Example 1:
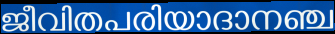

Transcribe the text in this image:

ജീവിതപരിയാദാനഞ്ച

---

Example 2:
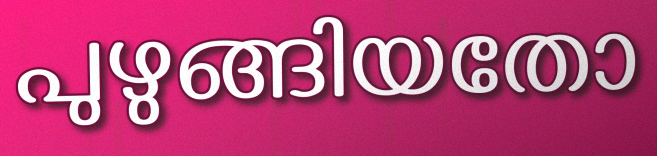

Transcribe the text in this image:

പുഴുങ്ങിയതോ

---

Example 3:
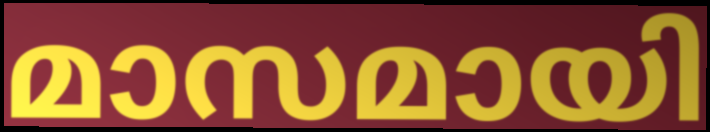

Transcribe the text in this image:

മാസമായി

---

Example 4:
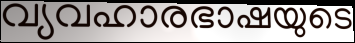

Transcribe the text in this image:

വ്യവഹാരഭാഷയുടെ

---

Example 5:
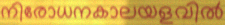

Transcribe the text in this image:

നിരോധനകാലയളവിൽ